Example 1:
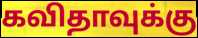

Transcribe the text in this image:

கவிதாவுக்கு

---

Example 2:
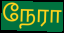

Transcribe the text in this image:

நேரா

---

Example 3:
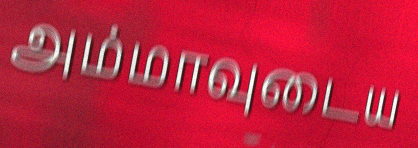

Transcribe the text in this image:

அம்மாவுடைய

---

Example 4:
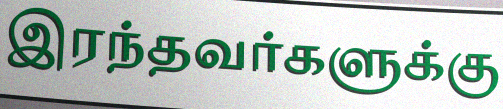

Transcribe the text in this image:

இரந்தவர்களுக்கு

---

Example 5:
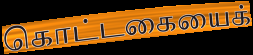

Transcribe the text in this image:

கொட்டகையைக்